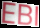
EBI